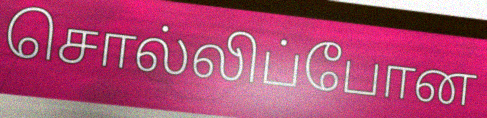
சொல்லிப்போன